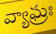
వ్యాఘ్రః